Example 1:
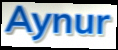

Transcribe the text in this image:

Aynur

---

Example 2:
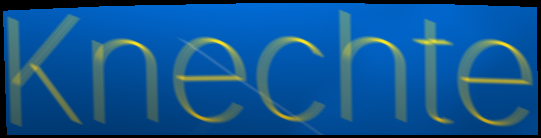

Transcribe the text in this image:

Knechte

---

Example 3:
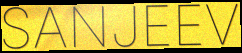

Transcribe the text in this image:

SANJEEV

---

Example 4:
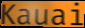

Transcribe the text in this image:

Kauai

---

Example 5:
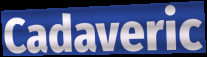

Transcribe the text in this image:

Cadaveric